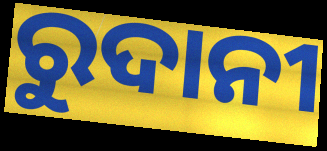
ରୁଦାନୀ